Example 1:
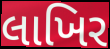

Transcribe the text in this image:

લાખિર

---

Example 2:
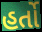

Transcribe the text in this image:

હર્તો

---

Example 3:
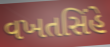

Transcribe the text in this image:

વખતસિંહે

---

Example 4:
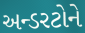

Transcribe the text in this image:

અન્ડરટોને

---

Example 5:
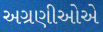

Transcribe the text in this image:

અગ્રણીઓએ